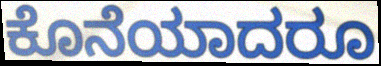
ಕೊನೆಯಾದರೂ